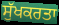
ਸੁੱਖਕਰਤਾ